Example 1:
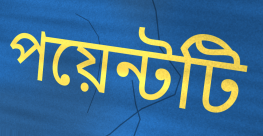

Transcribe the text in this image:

পয়েন্টটি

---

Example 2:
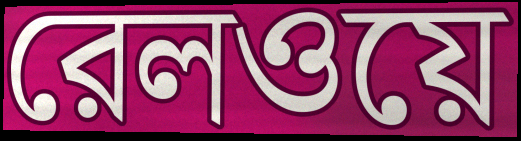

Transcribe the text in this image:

রেলওয়ে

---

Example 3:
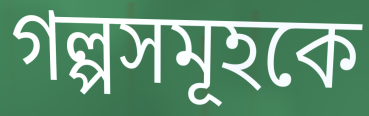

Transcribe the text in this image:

গল্পসমূহকে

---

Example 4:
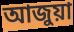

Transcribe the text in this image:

আজুয়া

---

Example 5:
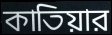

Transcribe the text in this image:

কাতিয়ার